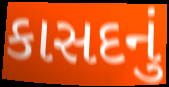
કાસદનું